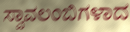
ಸ್ವಾವಲಂಬಿಗಳಾದ